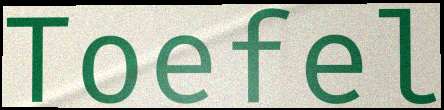
Toefel